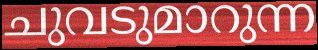
ചുവടുമാറുന്ന